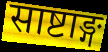
साष्टाङ्ग